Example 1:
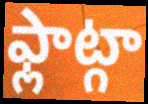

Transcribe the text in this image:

ఫ్లాట్గా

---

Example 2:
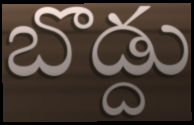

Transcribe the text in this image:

బొడ్దు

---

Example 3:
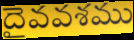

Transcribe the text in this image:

దైవవశము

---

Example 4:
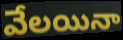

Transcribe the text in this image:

వేలయినా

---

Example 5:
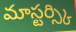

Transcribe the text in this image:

మాస్టర్స్కి